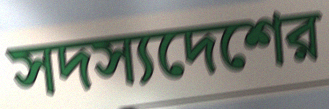
সদস্যদেশের